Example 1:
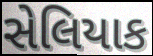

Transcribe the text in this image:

સેલિયાક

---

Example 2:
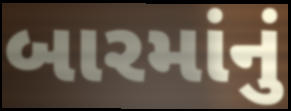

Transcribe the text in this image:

બારમાંનું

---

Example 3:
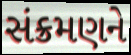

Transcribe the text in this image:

સંક્રમણને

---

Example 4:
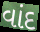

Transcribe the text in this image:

વાંદ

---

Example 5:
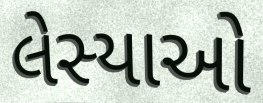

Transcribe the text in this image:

લેસ્યાઓ